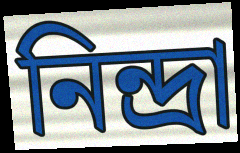
নিন্দ্ৰা